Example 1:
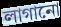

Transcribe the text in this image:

লাগানো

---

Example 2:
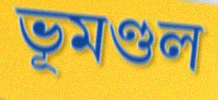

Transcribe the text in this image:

ভূমণ্ডল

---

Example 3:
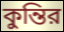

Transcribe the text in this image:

কুন্তির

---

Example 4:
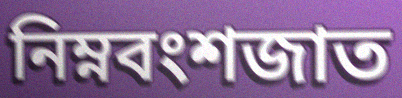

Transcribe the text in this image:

নিম্নবংশজাত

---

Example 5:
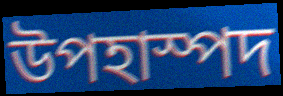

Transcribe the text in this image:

উপহাস্পদ